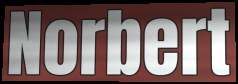
Norbert